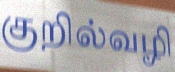
குறில்வழி